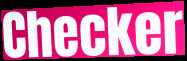
Checker